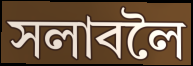
সলাবলৈ